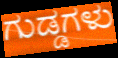
ಗುಡ್ಡಗಳು